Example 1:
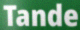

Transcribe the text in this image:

Tande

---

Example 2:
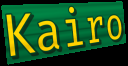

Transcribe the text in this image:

Kairo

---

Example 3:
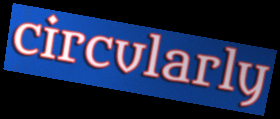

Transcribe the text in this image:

circularly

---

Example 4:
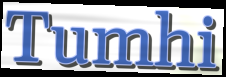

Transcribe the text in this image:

Tumhi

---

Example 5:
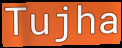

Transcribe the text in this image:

Tujha